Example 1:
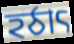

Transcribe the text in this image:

হঠাৎ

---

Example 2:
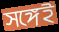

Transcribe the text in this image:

সঙ্গেই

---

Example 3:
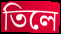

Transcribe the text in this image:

তিলে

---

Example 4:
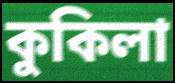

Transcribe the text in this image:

কুকিলা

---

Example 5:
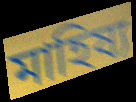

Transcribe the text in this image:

মাহিষ্য